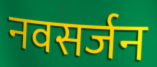
नवसर्जन